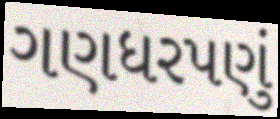
ગણધરપણું